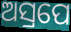
ଅସ୍ରପେ